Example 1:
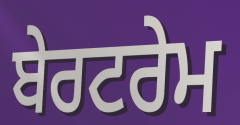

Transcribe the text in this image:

ਬੇਰਟਰੇਮ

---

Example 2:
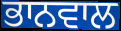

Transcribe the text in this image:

ਭਾਨਵਾਲ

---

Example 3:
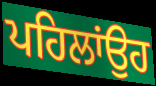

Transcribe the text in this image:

ਪਹਿਲਾਂਉਹ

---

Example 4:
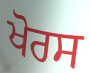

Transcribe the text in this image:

ਖੋਰਸ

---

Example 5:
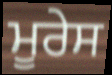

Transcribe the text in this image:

ਮੂਰੇਸ